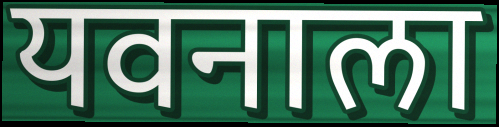
यवनाला